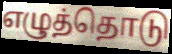
எழுத்தொடு